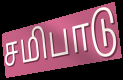
சமிபாடு